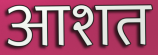
आशत